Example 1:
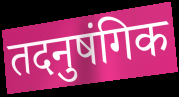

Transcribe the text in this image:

तदनुषंगिक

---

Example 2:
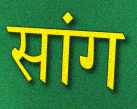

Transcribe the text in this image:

सांग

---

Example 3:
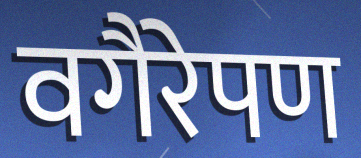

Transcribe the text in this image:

वगैरेपण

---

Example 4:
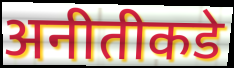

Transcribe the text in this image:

अनीतीकडे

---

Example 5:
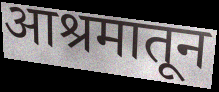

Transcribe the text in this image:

आश्रमातून